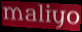
maliyo